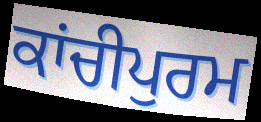
ਕਾਂਚੀਪੁਰਮ